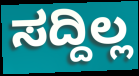
ಸದ್ದಿಲ್ಲ